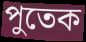
পুতেক